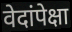
वेदांपेक्षा